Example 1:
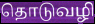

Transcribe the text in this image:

தொடுவழி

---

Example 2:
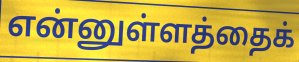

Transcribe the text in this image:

என்னுள்ளத்தைக்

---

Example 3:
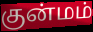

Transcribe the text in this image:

குன்மம்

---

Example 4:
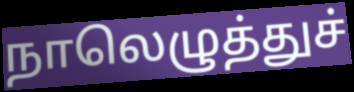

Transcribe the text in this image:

நாலெழுத்துச்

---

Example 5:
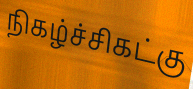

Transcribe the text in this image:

நிகழ்ச்சிகட்கு